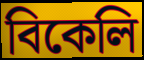
বিকেলি